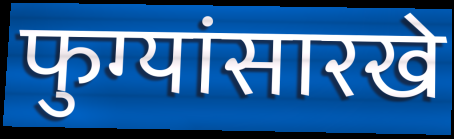
फुग्यांसारखे